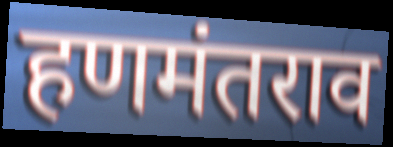
हणमंतराव